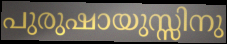
പുരുഷായുസ്സിനു